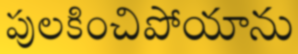
పులకించిపోయాను